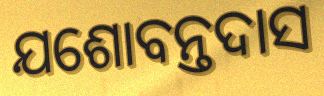
ଯଶୋବନ୍ତଦାସ